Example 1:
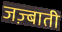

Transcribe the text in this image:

जज़्बाती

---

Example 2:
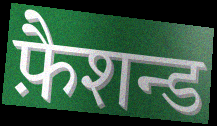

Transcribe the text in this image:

फ़ैशन्ड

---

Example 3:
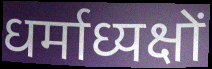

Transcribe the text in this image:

धर्माध्यक्षों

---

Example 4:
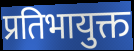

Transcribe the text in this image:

प्रतिभायुक्त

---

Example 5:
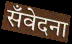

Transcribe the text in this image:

सँवेदना